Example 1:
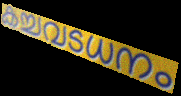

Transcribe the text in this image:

കച്ചവടധനം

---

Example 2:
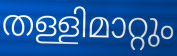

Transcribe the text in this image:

തള്ളിമാറ്റും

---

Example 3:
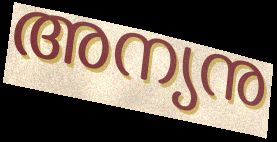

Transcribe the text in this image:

അന്യനു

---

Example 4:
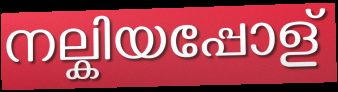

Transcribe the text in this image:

നല്കിയപ്പോള്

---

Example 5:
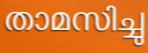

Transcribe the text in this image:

താമസിച്ചു